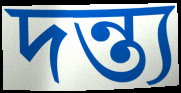
দন্ত্য